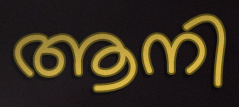
ആനി